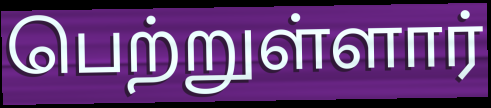
பெற்றுள்ளார்